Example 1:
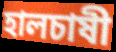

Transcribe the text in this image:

হালচাষী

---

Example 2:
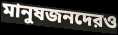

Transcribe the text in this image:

মানুষজনদেরও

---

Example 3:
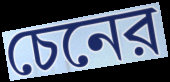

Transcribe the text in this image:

চেনের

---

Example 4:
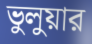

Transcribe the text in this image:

ভুলুয়ার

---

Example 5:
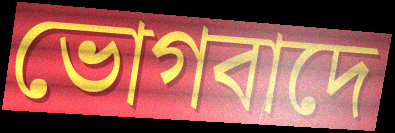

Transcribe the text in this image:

ভোগবাদে